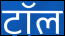
टॉल